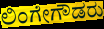
ಲಿಂಗೇಗೌಡರು